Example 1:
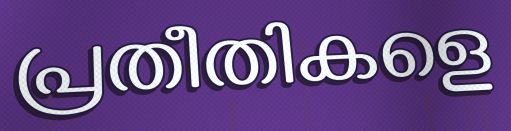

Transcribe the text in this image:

പ്രതീതികളെ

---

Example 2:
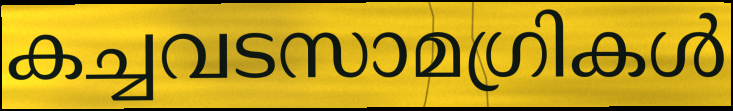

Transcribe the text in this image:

കച്ചവടസാമഗ്രികൾ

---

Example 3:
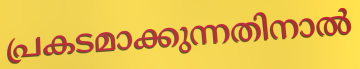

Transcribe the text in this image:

പ്രകടമാക്കുന്നതിനാൽ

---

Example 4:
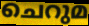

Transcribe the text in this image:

ചെറുമ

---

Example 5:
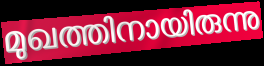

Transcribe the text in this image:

മുഖത്തിനായിരുന്നു